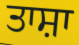
ਤਾਸ਼ਾ